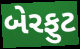
બેરફુટ